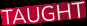
TAUGHT